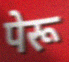
पेरू